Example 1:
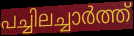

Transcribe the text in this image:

പച്ചിലച്ചാർത്ത്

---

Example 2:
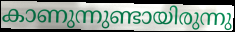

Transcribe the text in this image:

കാണുന്നുണ്ടായിരുന്നു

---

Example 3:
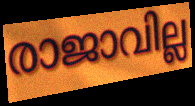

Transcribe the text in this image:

രാജാവില്ല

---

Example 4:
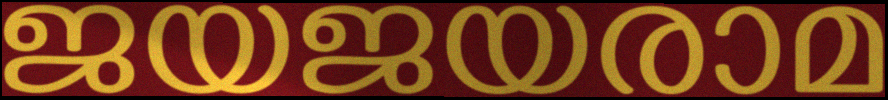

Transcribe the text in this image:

ജയജയരാമ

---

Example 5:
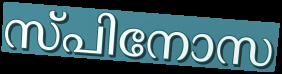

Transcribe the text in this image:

സ്പിനോസ